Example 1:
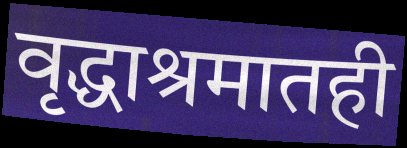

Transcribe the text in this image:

वृद्धाश्रमातही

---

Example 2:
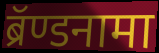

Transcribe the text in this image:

ब्रॅण्डनामा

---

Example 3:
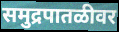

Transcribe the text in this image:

समुद्रपातळीवर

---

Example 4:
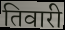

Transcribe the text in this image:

तिवारी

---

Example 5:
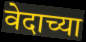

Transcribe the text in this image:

वेदाच्या